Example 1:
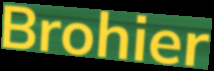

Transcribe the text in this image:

Brohier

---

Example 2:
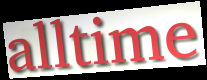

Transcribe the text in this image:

alltime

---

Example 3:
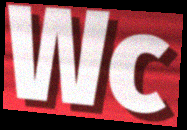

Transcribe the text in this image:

Wc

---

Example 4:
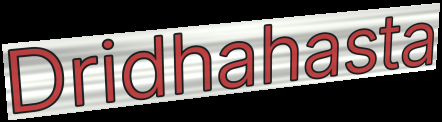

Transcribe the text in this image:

Dridhahasta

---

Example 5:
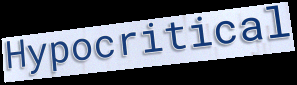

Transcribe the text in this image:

Hypocritical